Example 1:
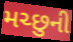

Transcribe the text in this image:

મચ્છુની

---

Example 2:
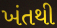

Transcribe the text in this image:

ખંતથી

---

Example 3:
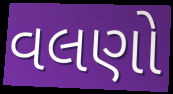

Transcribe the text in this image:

વલણો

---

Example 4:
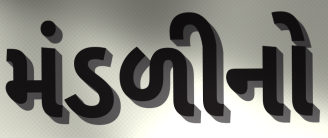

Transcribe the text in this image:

મંડળીનો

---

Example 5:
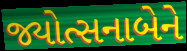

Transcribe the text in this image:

જ્યોત્સનાબેને